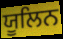
ਯੂਲਿਨ